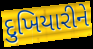
દુખિયારીને